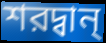
শরদ্বান্